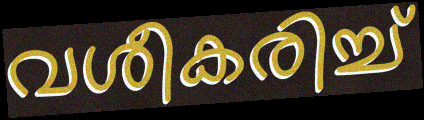
വശീകരിച്ച്